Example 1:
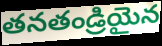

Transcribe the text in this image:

తనతండ్రియైన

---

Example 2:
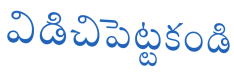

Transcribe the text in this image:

విడిచిపెట్టకండి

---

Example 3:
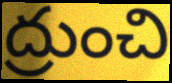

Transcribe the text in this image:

ద్రుంచి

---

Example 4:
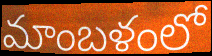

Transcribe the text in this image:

మాంబళంలో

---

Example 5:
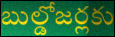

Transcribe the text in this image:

బుల్డోజర్లకు